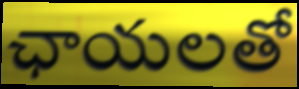
ఛాయలతో